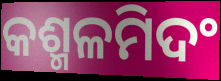
କଶ୍ମଳମିଦଂ